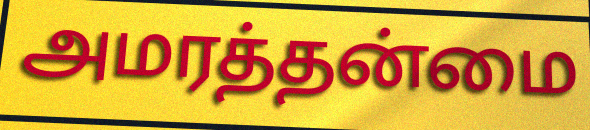
அமரத்தன்மை